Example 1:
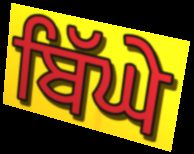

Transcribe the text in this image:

ਬਿੱਘੇ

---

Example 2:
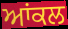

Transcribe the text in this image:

ਆਂਕਲ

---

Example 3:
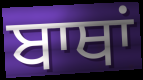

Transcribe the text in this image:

ਬਾਥਾਂ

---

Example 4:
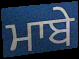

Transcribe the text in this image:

ਮਾਬੇ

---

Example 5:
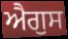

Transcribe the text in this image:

ਐਗੁਸ